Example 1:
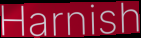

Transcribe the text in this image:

Harnish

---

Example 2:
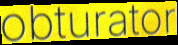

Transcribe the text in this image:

obturator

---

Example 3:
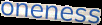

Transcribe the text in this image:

oneness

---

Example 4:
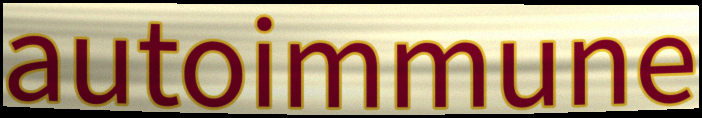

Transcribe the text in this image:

autoimmune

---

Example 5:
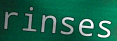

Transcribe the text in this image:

rinses